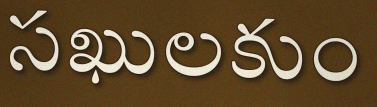
సఖులకుం